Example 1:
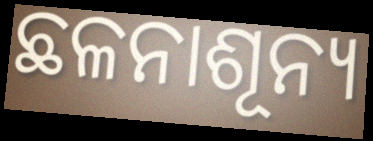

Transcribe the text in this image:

ଛଳନାଶୂନ୍ୟ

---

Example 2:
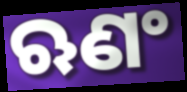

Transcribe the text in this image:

ଋଣଂ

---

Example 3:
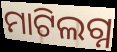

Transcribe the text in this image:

ମାଟିଲଗ୍ନ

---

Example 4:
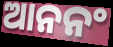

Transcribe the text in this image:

ଆନନଂ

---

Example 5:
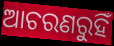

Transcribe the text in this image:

ଆଚରଣରୁହିଁ